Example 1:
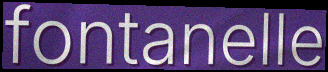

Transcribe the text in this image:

fontanelle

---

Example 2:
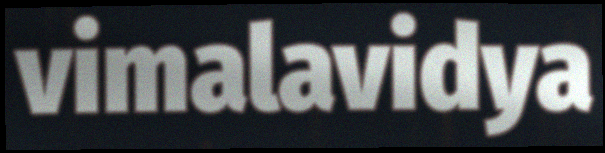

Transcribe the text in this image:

vimalavidya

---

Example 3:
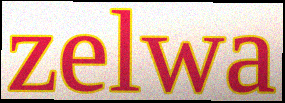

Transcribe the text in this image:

zelwa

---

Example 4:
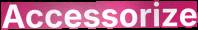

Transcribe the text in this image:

Accessorize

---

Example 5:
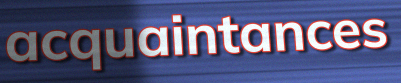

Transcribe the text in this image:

acquaintances